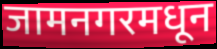
जामनगरमधून